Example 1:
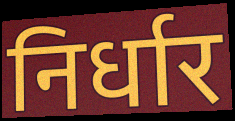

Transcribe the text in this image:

निर्धार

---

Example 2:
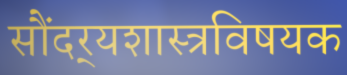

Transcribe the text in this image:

सौंदर्यशास्त्रविषयक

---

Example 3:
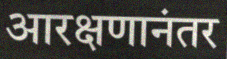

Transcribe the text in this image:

आरक्षणानंतर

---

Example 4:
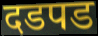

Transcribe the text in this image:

दडपड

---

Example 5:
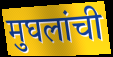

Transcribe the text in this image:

मुघलांची